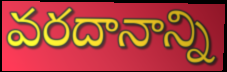
వరదానాన్ని